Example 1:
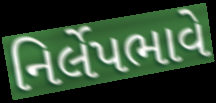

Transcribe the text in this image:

નિર્લેપભાવે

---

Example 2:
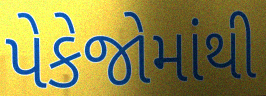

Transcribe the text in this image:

પેકેજોમાંથી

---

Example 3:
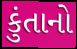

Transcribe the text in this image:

કુંતાનો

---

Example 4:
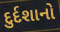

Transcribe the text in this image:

દુર્દશાનો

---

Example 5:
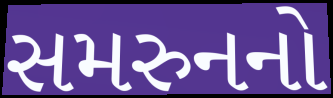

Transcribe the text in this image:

સમરુનનો